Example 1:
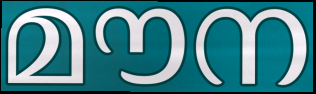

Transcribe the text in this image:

മൗന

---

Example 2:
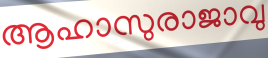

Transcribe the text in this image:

ആഹാസുരാജാവു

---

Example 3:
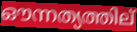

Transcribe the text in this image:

ഔന്നത്യത്തില്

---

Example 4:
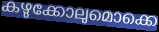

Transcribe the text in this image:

കഴുക്കോലുമൊക്കെ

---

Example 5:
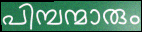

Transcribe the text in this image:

പിമ്പന്മാരും